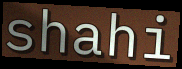
shahi